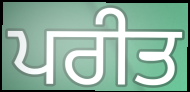
ਪਰੀਤ